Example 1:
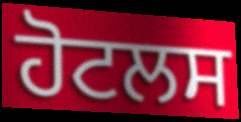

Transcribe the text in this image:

ਹੋਟਲਸ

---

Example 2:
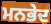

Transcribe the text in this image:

ਮਨਭੇਦ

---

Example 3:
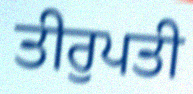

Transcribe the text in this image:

ਤੀਰੁਪਤੀ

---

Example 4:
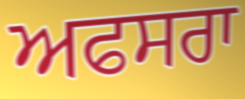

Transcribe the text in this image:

ਅਫਸਰਾ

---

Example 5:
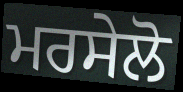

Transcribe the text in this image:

ਮਰਸੇਲੋ